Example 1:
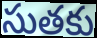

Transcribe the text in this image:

సుతకు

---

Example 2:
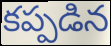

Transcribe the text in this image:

కప్పడిన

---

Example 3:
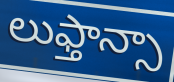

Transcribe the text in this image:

లుఫ్తాన్సా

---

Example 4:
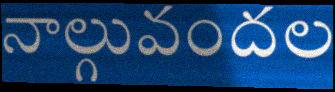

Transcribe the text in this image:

నాల్గువందల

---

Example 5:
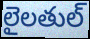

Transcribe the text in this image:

లైలతుల్